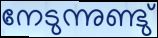
നേടുന്നുണ്ടു്